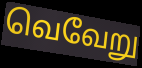
வெவேறு